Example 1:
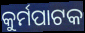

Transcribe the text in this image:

କୁର୍ମପାଟକ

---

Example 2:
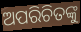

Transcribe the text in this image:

ଅପରିଚିତଙ୍କୁ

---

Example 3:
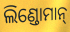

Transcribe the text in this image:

ଲିଣ୍ଡୋମାନ୍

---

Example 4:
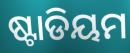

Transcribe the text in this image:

ଷ୍ଟାଡିୟମ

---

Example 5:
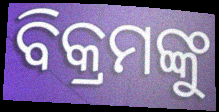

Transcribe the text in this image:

ବିକ୍ରମଙ୍କୁ